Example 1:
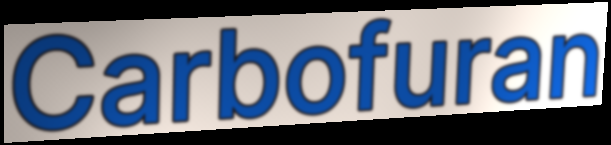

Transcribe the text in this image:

Carbofuran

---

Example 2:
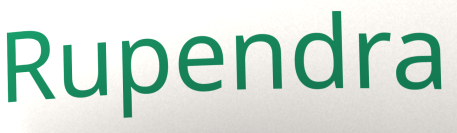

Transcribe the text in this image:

Rupendra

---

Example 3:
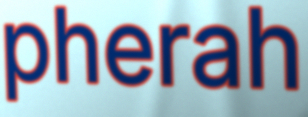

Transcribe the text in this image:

pherah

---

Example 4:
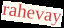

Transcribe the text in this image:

rahevay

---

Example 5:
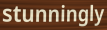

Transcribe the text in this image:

stunningly